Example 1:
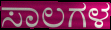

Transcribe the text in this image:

ಸಾಲಗಳ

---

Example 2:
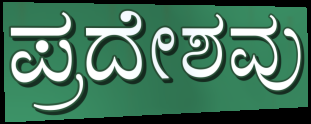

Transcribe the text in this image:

ಪ್ರದೇಶವು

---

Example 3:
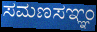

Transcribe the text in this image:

ಸಮಣಸಞ್ಞಂ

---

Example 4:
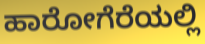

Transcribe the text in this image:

ಹಾರೋಗೆರೆಯಲ್ಲಿ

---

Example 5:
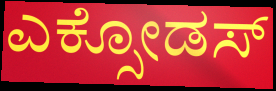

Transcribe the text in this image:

ಎಕ್ಸೋಡಸ್